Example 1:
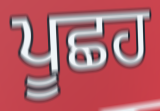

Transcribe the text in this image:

ਪੂਛਹ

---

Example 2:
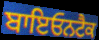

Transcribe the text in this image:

ਬਾਇਓਨਟੈਕ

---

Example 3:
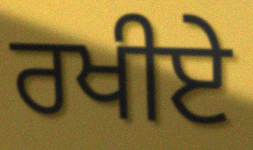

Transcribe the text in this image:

ਰਖੀਏ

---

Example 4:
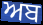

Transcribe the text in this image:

ਅਬ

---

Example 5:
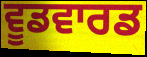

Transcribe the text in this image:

ਵੂਡਵਾਰਡ